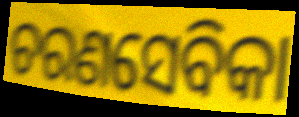
ଚରଣସେବିକା